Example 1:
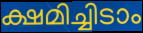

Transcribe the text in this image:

ക്ഷമിച്ചിടാം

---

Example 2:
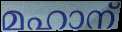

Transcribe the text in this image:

മഹാന്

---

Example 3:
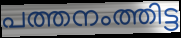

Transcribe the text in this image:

പത്തനംത്തിട്ട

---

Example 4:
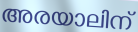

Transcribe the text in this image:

അരയാലിന്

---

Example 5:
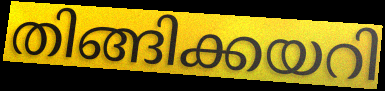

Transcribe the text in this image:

തിങ്ങിക്കയറി